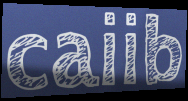
caiib